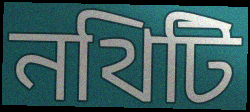
নথিটি